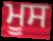
ਮੂਸ